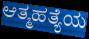
ಆತ್ಮಹತ್ಯೆಯ